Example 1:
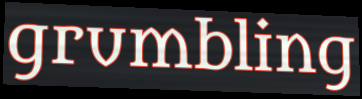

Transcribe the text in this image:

grumbling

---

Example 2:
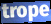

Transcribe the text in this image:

trope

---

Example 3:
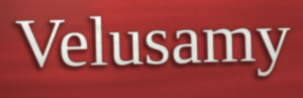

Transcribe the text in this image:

Velusamy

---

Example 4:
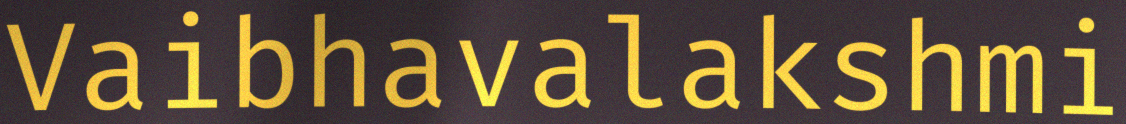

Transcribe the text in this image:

Vaibhavalakshmi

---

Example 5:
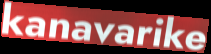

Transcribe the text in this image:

kanavarike